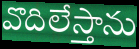
వొదిలేస్తాను